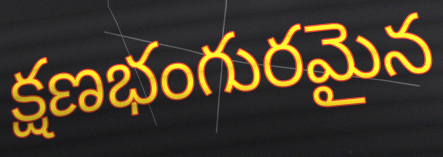
క్షణభంగురమైన